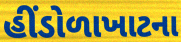
હીંડોળાખાટના